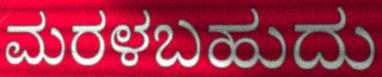
ಮರಳಬಹುದು